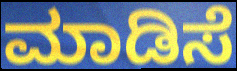
ಮಾಡಿಸೆ